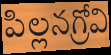
పిల్లనగ్రోవి